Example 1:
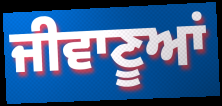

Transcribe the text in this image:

ਜੀਵਾਣੂਆਂ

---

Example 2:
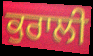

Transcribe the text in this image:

ਕੁਰਾਲੀ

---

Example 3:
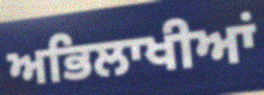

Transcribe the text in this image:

ਅਭਿਲਾਖੀਆਂ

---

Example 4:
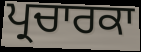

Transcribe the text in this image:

ਪ੍ਰਚਾਰਕਾ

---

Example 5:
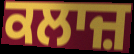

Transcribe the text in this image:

ਕਲਾਜ਼